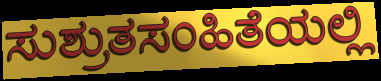
ಸುಶ್ರುತಸಂಹಿತೆಯಲ್ಲಿ